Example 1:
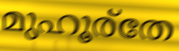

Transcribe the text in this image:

മുഹൂര്തേ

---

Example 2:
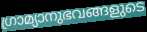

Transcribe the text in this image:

ഗ്രാമ്യാനുഭവങ്ങളുടെ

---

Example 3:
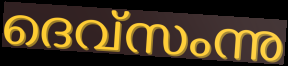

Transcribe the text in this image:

ദെവ്സംന്നു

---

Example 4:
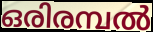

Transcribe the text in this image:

ഒരിരമ്പൽ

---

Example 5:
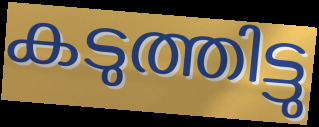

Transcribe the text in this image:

കടുത്തിട്ടു